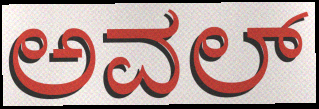
ಅವಲ್